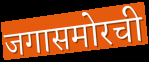
जगासमोरची